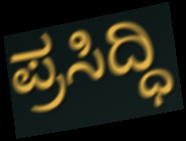
ಪ್ರಸಿದ್ಧಿ